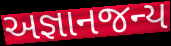
અજ્ઞાનજન્ય